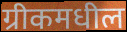
ग्रीकमधील